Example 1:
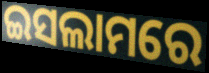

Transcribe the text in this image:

ଇସଲାମରେ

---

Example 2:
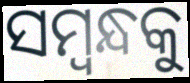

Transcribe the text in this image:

ସମ୍ବନ୍ଧକୁ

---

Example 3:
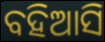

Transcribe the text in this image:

ବହିଆସି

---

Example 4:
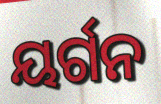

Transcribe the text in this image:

ୟର୍ଗନ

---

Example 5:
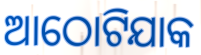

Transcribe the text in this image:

ଆଠୋଟିଯାକ